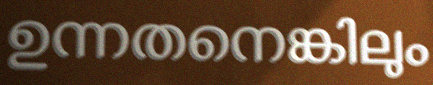
ഉന്നതനെങ്കിലും